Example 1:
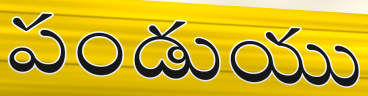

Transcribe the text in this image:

పండుయు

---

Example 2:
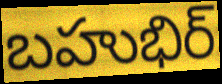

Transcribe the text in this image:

బహుభిర్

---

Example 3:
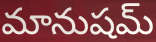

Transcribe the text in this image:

మానుషమ్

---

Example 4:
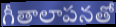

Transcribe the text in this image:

గీతాలాపనతో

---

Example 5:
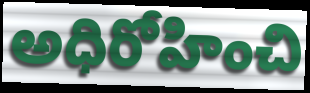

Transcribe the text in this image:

అధిరోహించి